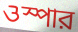
ওস্পার